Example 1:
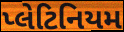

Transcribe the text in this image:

પ્લેટિનિયમ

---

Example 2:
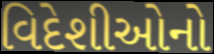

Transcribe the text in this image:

વિદેશીઓનો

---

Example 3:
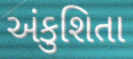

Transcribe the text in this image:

અંકુશિતા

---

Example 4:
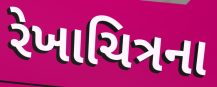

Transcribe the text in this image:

રેખાચિત્રના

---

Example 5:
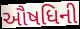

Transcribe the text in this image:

ઔષધિની